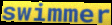
swimmer